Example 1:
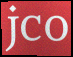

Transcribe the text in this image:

jco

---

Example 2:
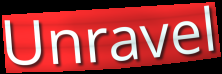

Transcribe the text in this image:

Unravel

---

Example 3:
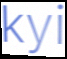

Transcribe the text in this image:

kyi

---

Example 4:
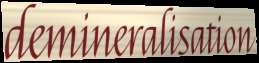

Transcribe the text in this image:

demineralisation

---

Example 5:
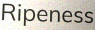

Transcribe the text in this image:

Ripeness